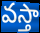
వస్తా